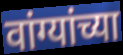
वांग्यांच्या